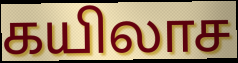
கயிலாச